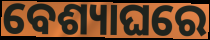
ବେଶ୍ୟାଘରେ